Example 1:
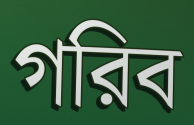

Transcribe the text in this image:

গরিব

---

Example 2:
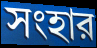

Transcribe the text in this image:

সংহার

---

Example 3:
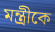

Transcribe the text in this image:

মন্ত্রীকে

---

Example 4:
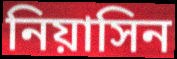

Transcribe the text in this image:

নিয়াসিন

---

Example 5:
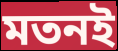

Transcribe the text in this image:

মতনই